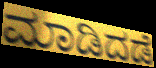
ಮಾಡಿದಡೆ